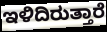
ಇಳಿದಿರುತ್ತಾರೆ